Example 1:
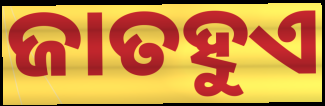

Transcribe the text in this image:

ଜାତହୁଏ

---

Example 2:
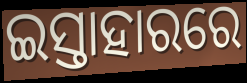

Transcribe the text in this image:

ଇସ୍ତାହାରରେ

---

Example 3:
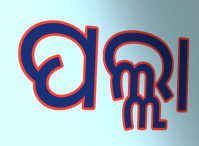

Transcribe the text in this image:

ପଲ୍ଲା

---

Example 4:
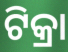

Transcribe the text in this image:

ଟିକ୍ରା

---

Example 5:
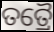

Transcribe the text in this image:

ତତ୍ରୈ